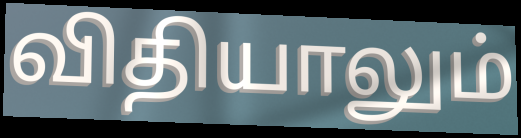
விதியாலும்